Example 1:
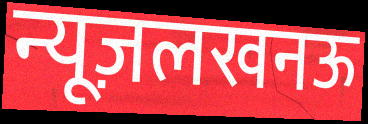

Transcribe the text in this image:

न्यूज़लखनऊ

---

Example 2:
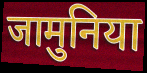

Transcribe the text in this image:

जामुनिया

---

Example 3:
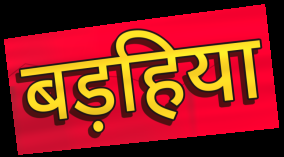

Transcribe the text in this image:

बड़हिया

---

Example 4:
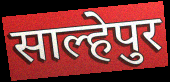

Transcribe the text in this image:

साल्हेपुर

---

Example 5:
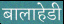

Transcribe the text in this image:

बालाहेडी